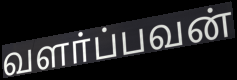
வளர்ப்பவன்